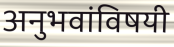
अनुभवांविषयी